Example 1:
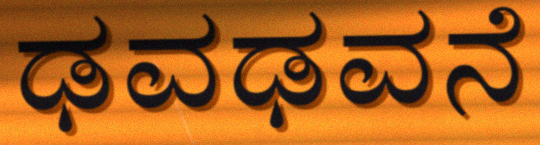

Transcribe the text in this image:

ಢವಢವನೆ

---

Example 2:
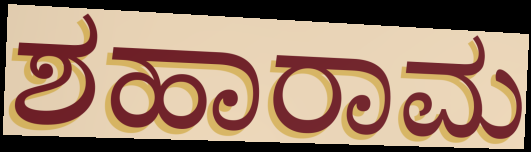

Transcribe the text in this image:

ಶಹಾರಾಮ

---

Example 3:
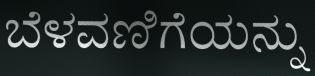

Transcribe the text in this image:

ಬೆಳವಣಿಗೆಯನ್ನು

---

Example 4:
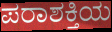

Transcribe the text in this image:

ಪರಾಶಕ್ತಿಯ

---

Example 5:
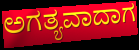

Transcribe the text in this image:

ಅಗತ್ಯವಾದಾಗ